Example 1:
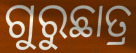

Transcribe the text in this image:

ଗୁରୁଛାତ୍ର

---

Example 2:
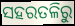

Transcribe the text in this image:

ସହରତଳିରୁ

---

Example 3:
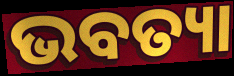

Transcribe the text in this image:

ଭବତ୍ୟା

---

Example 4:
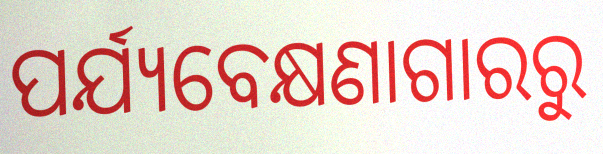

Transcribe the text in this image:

ପର୍ଯ୍ୟବେକ୍ଷଣାଗାରରୁ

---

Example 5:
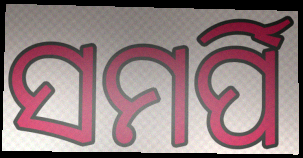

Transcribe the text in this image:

ସମର୍ପି